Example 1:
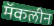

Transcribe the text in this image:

मॅकलीन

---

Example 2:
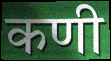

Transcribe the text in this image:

कणी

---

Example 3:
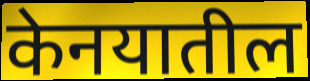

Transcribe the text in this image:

केनयातील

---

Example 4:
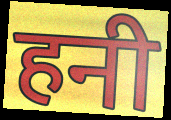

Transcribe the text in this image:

हनी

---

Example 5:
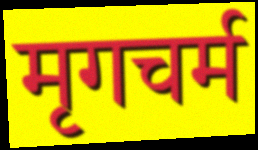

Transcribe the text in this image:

मृगचर्म